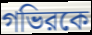
গভিরকে